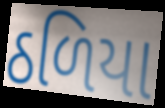
ઠળિયા